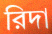
রিদা